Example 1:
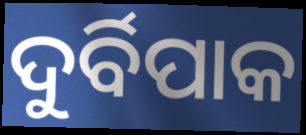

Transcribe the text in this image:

ଦୁର୍ବିପାକ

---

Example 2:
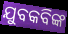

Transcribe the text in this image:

ଯୁବକବିଙ୍କ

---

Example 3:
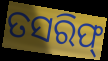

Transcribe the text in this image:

ତସରିଫ୍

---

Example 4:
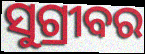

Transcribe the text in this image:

ସୁଗ୍ରୀବର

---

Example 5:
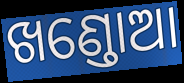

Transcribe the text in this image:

ଖଣ୍ଡୋଆ